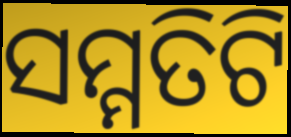
ସମ୍ମତିଟି